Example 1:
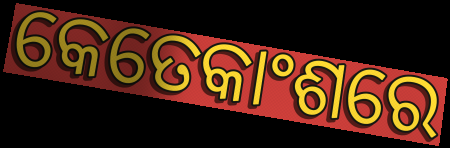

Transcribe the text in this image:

କେତେକାଂଶରେ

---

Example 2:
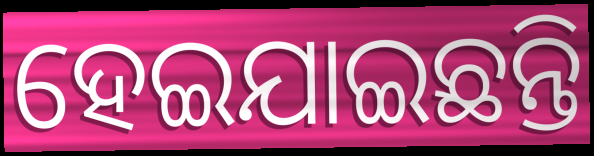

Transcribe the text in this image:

ହେଇଯାଇଛନ୍ତି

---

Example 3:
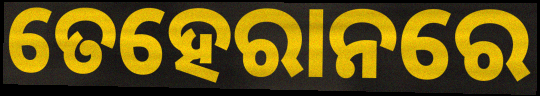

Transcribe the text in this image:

ତେହେରାନରେ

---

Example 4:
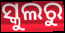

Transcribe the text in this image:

ସ୍କୁଲରୁ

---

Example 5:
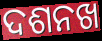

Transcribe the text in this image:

ଦଶନଖ